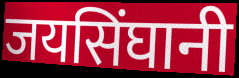
जयसिंघानी